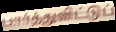
பார்த்துவிட்டுப்